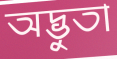
অদ্ভুতা